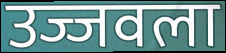
उज्‍जवला